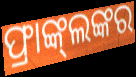
ଫ୍ରାଙ୍କ୍‌ଲଙ୍କର